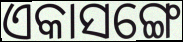
ଏକାସଙ୍ଗେ